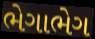
ભેગાભેગ